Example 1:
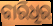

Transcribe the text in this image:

ବାରିଧିର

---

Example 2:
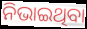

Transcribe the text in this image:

ନିଭାଇଥିବା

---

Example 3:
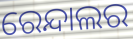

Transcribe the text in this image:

ରେନ୍ଦାଲର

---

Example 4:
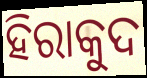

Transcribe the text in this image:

ହିରାକୁଦ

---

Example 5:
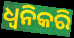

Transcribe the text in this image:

ଧ୍ୱନିକରି